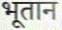
भूतान